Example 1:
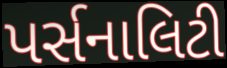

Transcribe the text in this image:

પર્સનાલિટી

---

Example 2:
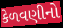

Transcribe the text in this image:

કેળવણીનો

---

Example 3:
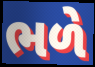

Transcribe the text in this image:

ભળે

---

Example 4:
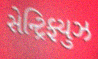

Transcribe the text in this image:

સેન્ટ્રિફ્યુઝ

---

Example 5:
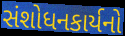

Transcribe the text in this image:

સંશોધનકાર્યનો